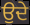
ਉਦੇ